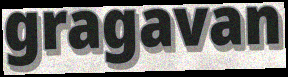
gragavan